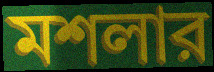
মশলার